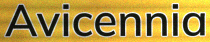
Avicennia